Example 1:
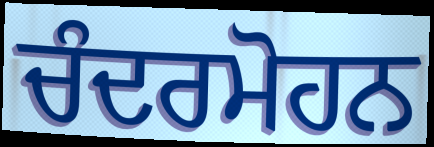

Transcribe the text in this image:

ਚੰਦਰਮੋਹਨ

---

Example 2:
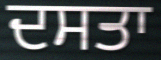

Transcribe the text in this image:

ਦਸਤਾ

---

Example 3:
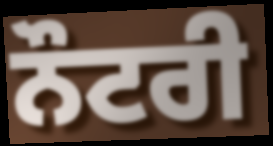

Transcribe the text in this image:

ਨੌਟਰੀ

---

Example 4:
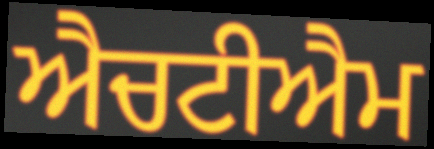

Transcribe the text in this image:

ਐਚਟੀਐਮ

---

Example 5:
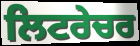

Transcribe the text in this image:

ਲਿਟਰੇਚਰ